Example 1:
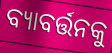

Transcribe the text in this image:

ବ୍ୟାବର୍ତ୍ତନକୁ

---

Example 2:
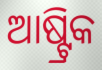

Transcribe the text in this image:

ଆଷ୍ଟ୍ରିକ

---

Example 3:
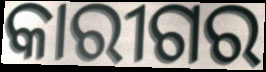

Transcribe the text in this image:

କାରୀଗର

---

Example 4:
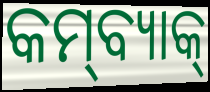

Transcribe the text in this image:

କମ୍‌ବ୍ୟାକ୍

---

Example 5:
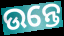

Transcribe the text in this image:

ଉନ୍ତେ